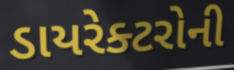
ડાયરેક્ટરોની